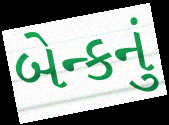
બેન્કનું